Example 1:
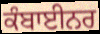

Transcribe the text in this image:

ਕੰਬਾਈਨਰ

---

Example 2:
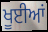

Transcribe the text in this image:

ਖੂਈਆਂ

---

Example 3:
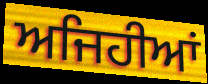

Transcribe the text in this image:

ਅਜਿਹੀਆਂ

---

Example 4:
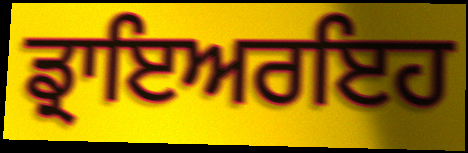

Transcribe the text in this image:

ਡ੍ਰਾਇਅਰਇਹ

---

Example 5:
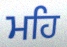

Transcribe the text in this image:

ਮਹਿ